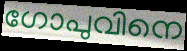
ഗോപുവിനെ